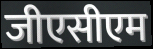
जीएसीएम